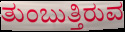
ತುಂಬುತ್ತಿರುವ